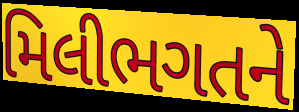
મિલીભગતને